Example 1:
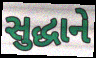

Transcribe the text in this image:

સુદ્ધાને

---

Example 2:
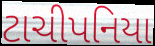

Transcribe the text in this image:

ટાચીપનિયા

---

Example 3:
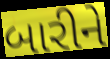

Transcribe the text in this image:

બારીને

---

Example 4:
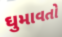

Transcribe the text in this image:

ઘુમાવતો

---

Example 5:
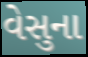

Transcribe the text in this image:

વેસુના